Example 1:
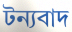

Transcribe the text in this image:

টন্যবাদ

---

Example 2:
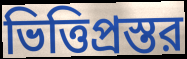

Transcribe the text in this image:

ভিত্তিপ্রস্তর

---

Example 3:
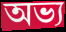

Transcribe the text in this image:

অভ্য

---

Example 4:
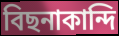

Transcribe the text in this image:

বিছনাকান্দি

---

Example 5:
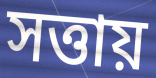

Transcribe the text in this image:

সত্তায়